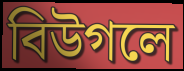
বিউগলে